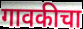
गावकीचा